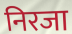
निरजा